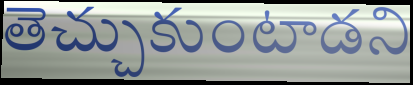
తెచ్చుకుంటాడని